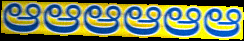
ఆఆఆఆఆఆ